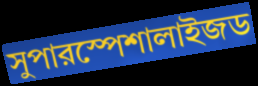
সুপারস্পেশালাইজড